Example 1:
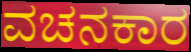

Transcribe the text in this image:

ವಚನಕಾರ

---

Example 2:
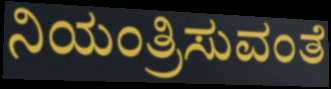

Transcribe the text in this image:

ನಿಯಂತ್ರಿಸುವಂತೆ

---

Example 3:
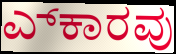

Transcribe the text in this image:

ಎ್‍ಕಾರವು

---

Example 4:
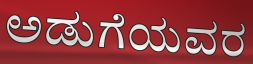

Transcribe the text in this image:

ಅಡುಗೆಯವರ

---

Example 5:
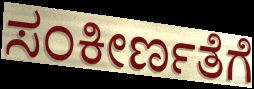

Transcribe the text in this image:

ಸಂಕೀರ್ಣತೆಗೆ